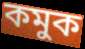
কমুক